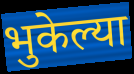
भुकेल्या